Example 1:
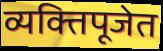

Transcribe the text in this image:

व्यक्तिपूजेत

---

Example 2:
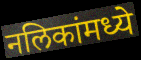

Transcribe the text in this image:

नलिकांमध्ये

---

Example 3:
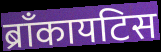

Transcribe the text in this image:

ब्राँकायटिस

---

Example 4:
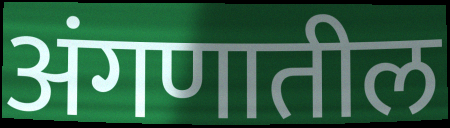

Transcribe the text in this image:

अंगणातील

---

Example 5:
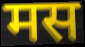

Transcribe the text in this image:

मस